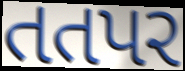
તતપર